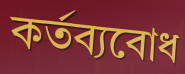
কর্তব্যবোধ